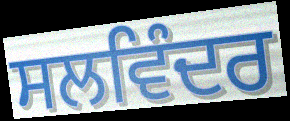
ਸਲਵਿੰਦਰ